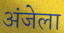
अंजेला